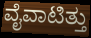
ವೈವಾಟಿತ್ತು